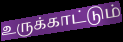
உருக்காட்டும்